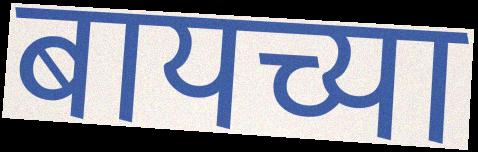
बायच्या